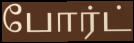
போர்ட்